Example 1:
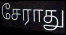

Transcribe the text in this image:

சேராது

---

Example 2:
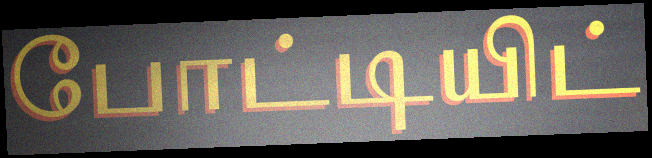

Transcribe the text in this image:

போட்டியிட்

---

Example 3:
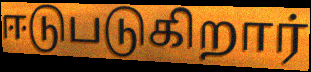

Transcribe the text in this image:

ஈடுபடுகிறார்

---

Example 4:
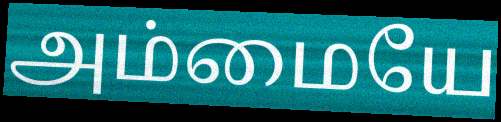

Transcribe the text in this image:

அம்மையே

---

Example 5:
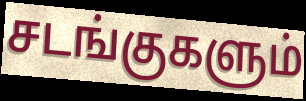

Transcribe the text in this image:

சடங்குகளும்